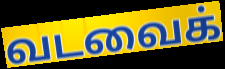
வடவைக்